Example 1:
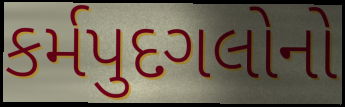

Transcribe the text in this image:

કર્મપુદગલોનો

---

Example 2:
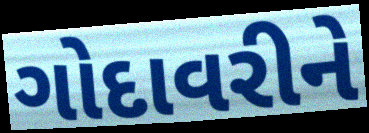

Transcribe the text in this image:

ગોદાવરીને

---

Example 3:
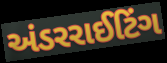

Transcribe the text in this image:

અંડરરાઈટિંગ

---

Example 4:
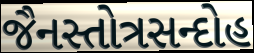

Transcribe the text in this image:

જૈનસ્તોત્રસન્દોહ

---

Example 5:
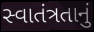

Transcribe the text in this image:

સ્વાતંત્રતાનું